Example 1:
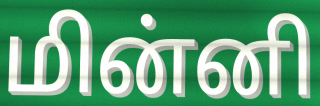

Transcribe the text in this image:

மின்னி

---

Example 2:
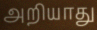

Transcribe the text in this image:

அறியாது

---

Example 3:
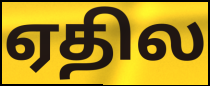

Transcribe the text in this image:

ஏதில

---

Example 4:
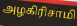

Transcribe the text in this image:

அழகிரிசாமி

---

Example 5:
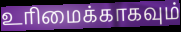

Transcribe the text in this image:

உரிமைக்காகவும்